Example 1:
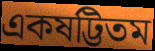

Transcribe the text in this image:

একষট্টিতম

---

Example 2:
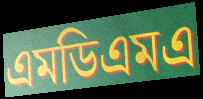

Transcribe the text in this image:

এমডিএমএ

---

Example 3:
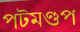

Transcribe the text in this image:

পটমণ্ডপ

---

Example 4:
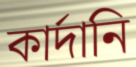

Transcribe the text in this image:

কার্দানি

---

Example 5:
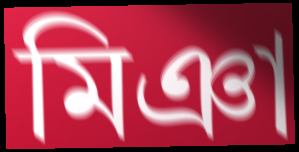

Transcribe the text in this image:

মিঞা